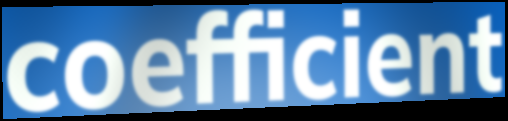
coefficient